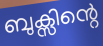
ബുക്സിന്റെ